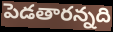
పెడతారన్నది